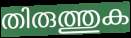
തിരുത്തുക